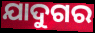
ଯାଦୁଗର